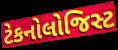
ટેકનોલોજિસ્ટ